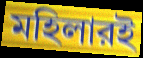
মহিলারই